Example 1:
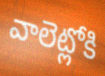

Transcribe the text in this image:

వాలెట్లోకి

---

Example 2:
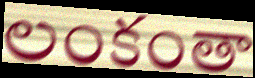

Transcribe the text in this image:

లంకంతా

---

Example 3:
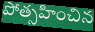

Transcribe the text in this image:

పోత్సహించిన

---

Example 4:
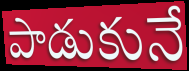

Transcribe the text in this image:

పాడుకునే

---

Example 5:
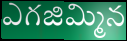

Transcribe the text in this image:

ఎగజిమ్మిన